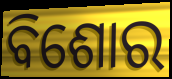
ବିଶୋର